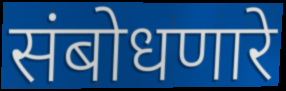
संबोधणारे